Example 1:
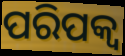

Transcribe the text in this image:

ପରିପକ୍ବ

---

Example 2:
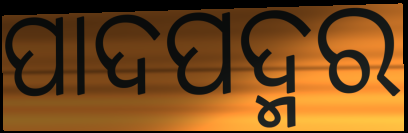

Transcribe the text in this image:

ପାଦପଦ୍ମର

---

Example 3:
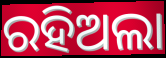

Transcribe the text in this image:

ରହିଅଲା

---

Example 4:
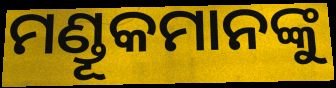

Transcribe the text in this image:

ମଣ୍ଡୂକମାନଙ୍କୁ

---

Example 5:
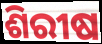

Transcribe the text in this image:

ଶିରୀଷ